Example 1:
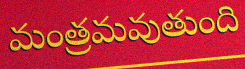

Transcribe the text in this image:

మంత్రమవుతుంది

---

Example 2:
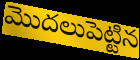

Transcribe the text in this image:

మొదలుపెట్టిన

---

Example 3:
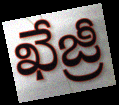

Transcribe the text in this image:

ఖేజ్రీ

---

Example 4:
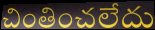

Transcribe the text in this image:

చింతించలేదు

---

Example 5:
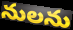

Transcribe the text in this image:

నులను